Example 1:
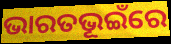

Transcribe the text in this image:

ଭାରତଭୂଇଁରେ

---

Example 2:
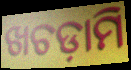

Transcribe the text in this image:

ଖଚଡ଼ାମି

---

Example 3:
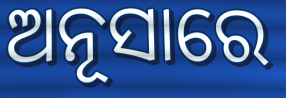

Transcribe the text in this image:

ଅନୂସାରେ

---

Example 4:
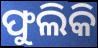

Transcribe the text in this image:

ଫୁଲିକି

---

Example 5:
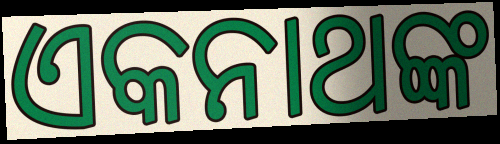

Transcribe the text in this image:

ଏକନାଥଙ୍କ